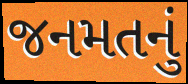
જનમતનું